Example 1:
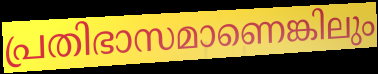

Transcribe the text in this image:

പ്രതിഭാസമാണെങ്കിലും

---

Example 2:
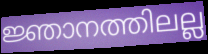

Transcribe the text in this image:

ജ്ഞാനത്തിലല്ല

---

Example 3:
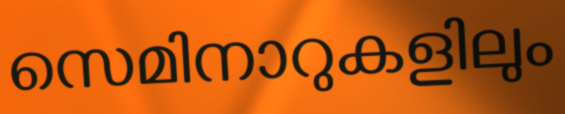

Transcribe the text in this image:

സെമിനാറുകളിലും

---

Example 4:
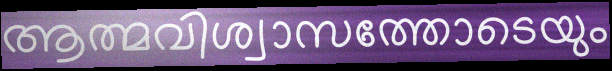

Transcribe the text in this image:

ആത്മവിശ്വാസത്തോടെയും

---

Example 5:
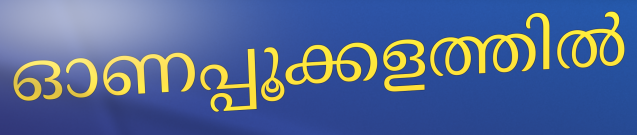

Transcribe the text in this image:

ഓണപ്പൂക്കളത്തിൽ